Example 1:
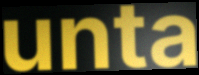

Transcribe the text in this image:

unta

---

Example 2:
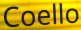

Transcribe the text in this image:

Coello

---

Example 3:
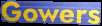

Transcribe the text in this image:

Gowers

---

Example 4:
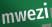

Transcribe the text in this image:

mwezi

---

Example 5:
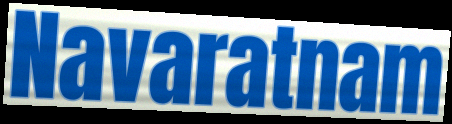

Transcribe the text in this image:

Navaratnam